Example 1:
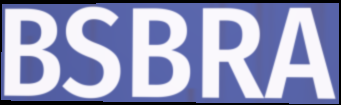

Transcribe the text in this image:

BSBRA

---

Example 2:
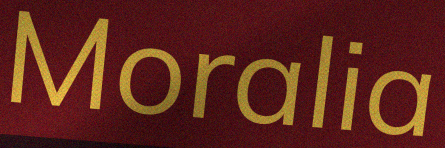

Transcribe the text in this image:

Moralia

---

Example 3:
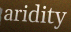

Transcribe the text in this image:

aridity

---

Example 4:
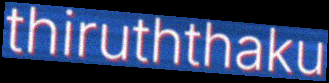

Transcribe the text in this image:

thiruththaku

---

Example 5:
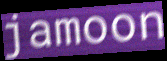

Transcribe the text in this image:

jamoon